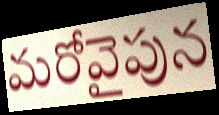
మరోవైపున